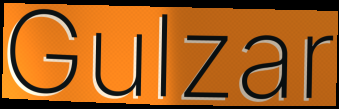
Gulzar